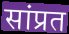
सांप्रत